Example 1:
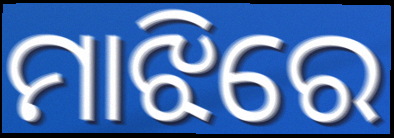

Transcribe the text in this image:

ମାଝିରେ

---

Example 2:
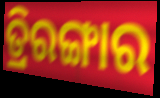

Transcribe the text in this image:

ତ୍ରିରଙ୍ଗାର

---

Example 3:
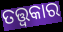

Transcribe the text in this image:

ତତ୍ତ୍ୱକାର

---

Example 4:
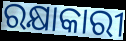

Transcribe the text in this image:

ରକ୍ଷାକାରୀ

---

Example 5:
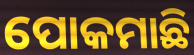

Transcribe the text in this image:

ପୋକମାଛି